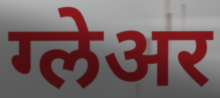
ग्लेअर